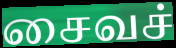
சைவச்